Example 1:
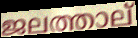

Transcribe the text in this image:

ജലത്താല്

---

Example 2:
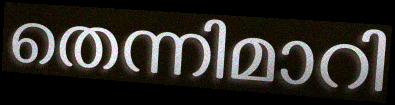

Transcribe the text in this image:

തെന്നിമാറി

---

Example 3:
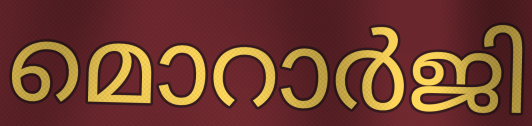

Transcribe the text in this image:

മൊറാർജി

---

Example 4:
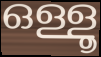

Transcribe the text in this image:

ഒള്ളൂ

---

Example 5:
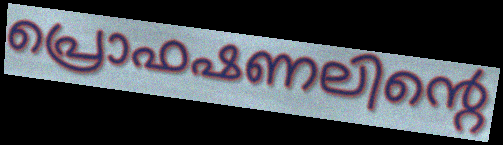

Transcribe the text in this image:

പ്രൊഫഷണലിന്റെ